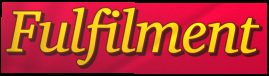
Fulfilment